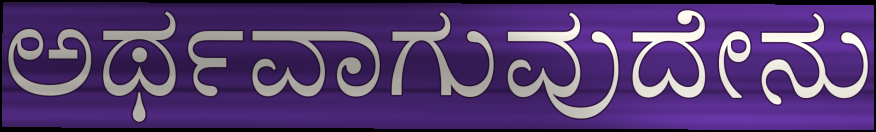
ಅರ್ಥವಾಗುವುದೇನು